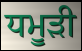
ਧਮੂੜੀ